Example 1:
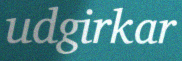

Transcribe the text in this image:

udgirkar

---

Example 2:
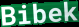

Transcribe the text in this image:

Bibek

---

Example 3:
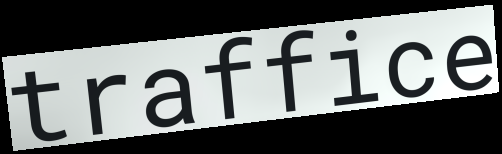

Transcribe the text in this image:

traffice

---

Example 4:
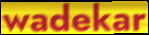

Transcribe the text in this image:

wadekar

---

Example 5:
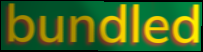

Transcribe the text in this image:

bundled